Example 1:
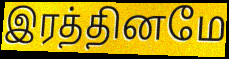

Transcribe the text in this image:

இரத்தினமே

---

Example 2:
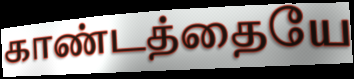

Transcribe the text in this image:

காண்டத்தையே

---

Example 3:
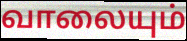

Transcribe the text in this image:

வாலையும்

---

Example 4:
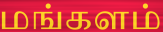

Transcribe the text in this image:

மங்களம்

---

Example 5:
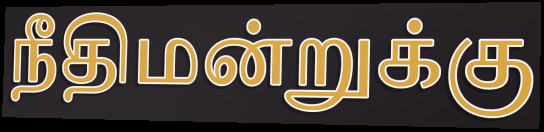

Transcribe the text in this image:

நீதிமன்றுக்கு